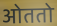
ओततो